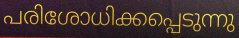
പരിശോധിക്കപ്പെടുന്നു